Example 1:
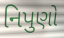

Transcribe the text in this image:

નિપુણો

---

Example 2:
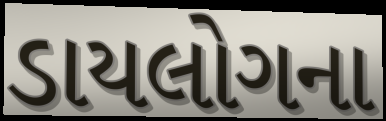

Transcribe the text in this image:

ડાયલોગના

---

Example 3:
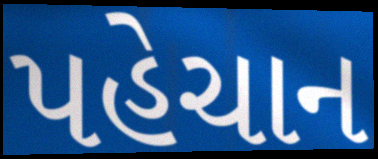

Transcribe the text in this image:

પહેચાન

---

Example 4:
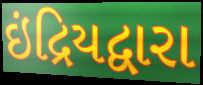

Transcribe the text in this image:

ઇંદ્રિયદ્વારા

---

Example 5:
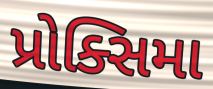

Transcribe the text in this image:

પ્રોક્સિમા